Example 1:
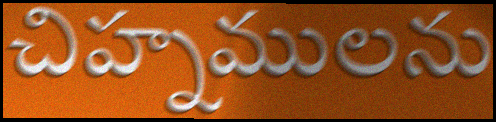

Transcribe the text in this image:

చిహ్నములను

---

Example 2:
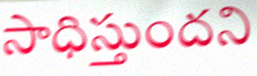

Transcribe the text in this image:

సాధిస్తుందని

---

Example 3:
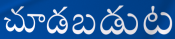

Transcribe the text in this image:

చూడబడుట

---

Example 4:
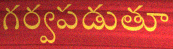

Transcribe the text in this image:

గర్వపడుతూ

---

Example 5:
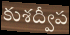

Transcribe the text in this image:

కుశద్వీప